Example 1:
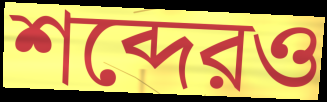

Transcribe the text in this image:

শব্দেরও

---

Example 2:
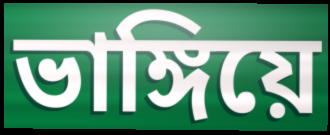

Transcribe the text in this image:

ভাঙ্গিয়ে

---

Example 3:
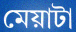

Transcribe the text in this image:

মেয়াটা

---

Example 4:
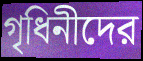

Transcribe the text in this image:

গৃধিনীদের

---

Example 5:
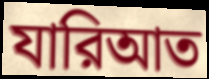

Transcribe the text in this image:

যারিআত